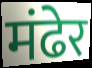
मंढेर